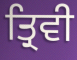
ਤ੍ਰਿਵੀ